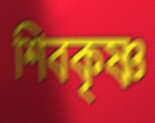
শিবকৃষ্ণ